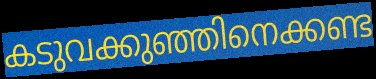
കടുവക്കുഞ്ഞിനെക്കണ്ട